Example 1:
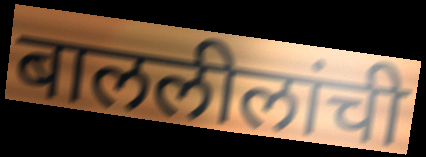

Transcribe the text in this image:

बाललीलांची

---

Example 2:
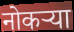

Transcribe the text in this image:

नोकऱ्या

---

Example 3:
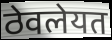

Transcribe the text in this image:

ठेवलेयत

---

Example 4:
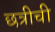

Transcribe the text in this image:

छत्रीची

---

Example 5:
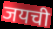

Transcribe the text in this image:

जयची